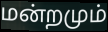
மன்றமும்